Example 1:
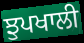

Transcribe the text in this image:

ਝੁਪਖਾਲੀ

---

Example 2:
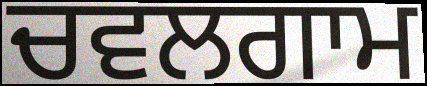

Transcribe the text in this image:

ਚਵਲਗਾਮ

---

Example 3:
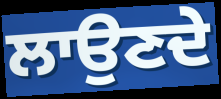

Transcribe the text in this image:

ਲਾਉਣਦੇ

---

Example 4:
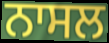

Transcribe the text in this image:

ਨਾਸਲ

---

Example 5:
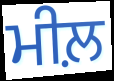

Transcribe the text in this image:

ਮੀਲ਼